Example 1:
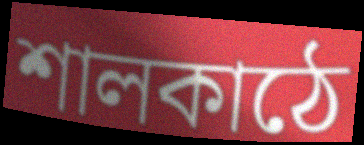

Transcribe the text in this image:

শালকাঠে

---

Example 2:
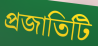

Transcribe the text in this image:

প্রজাতিটি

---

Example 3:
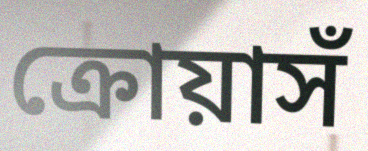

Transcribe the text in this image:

ক্রোয়াসঁ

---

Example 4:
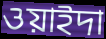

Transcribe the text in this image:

ওয়াইদা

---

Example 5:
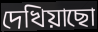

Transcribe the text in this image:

দেখিয়াছো